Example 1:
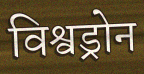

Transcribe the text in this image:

विश्वड्रोन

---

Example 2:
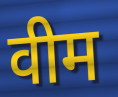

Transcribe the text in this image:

वीम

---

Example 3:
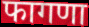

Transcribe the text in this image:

फागणा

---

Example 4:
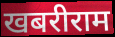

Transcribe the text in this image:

खबरीराम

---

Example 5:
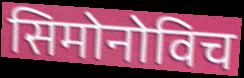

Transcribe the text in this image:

सिमोनोविच